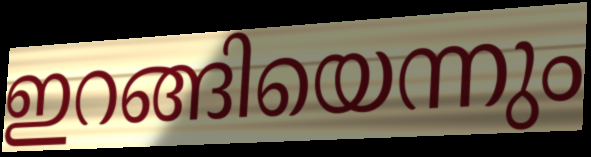
ഇറങ്ങിയെന്നും